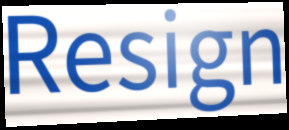
Resign